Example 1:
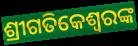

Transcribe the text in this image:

ଶ୍ରୀଗତିକେଶ୍ବରଙ୍କ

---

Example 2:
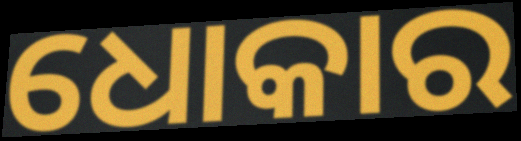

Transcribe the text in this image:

ଧୋକାର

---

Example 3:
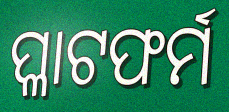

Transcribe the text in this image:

ପ୍ଳାଟଫର୍ମ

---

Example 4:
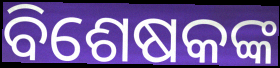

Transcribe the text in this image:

ବିଶେଷକଙ୍କ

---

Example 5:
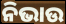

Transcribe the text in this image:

ନିଭାଉ